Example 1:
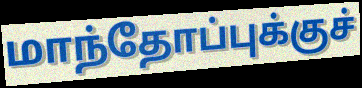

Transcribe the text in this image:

மாந்தோப்புக்குச்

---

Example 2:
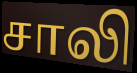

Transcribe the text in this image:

சாலி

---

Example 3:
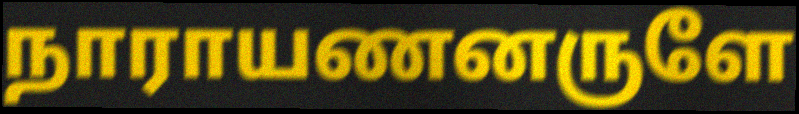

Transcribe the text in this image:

நாராயணனருளே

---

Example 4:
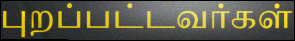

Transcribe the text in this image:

புறப்பட்டவர்கள்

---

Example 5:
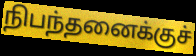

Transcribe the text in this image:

நிபந்தனைக்குச்